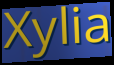
Xylia